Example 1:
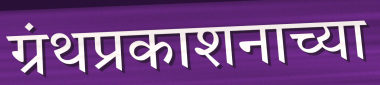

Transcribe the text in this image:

ग्रंथप्रकाशनाच्या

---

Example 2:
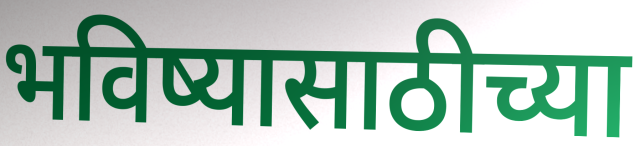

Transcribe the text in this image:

भविष्यासाठीच्या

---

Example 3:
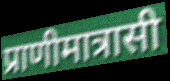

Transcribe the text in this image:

प्राणीमात्रासी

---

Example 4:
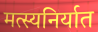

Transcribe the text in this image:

मत्स्यनिर्यात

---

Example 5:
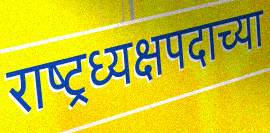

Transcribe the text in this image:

राष्ट्रध्यक्षपदाच्या